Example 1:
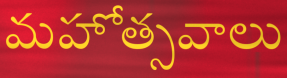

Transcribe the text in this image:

మహోత్సవాలు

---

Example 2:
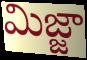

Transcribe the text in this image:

మిజ్జా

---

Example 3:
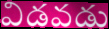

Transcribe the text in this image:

విడవడు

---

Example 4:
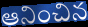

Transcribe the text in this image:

ఆనించిన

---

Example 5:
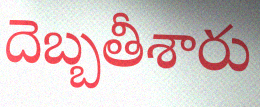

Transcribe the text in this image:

దెబ్బతీశారు